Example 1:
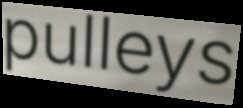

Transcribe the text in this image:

pulleys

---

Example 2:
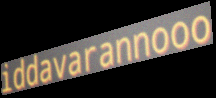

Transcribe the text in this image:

iddavarannooo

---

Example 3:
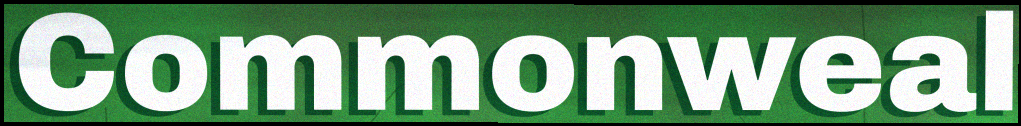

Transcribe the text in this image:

Commonweal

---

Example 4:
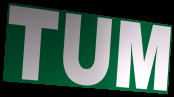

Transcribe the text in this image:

TUM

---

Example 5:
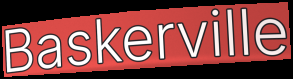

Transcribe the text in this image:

Baskerville